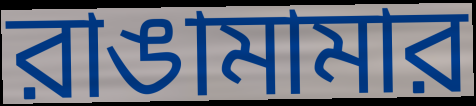
রাঙামামার